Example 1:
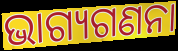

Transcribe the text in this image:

ଭାଗ୍ୟଗଣନା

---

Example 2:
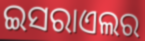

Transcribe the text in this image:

ଇସରାଏଲର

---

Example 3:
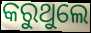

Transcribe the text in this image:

କରୁଥୁଲେ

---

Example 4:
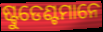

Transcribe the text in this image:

ଷ୍ଟୁଡେଣ୍ଟମାନେ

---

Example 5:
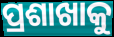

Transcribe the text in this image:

ପ୍ରଶାଖାକୁ